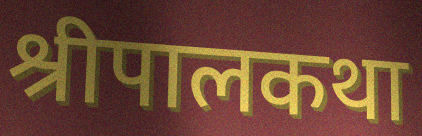
श्रीपालकथा